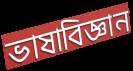
ভাষাবিজ্ঞান